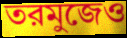
তরমুজেও